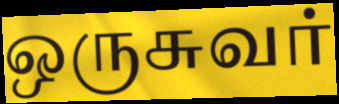
ஒருசுவர்